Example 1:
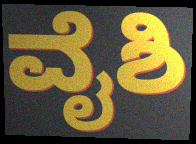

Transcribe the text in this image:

ವೈಶಿ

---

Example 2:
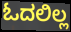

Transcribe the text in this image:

ಓದಲಿಲ್ಲ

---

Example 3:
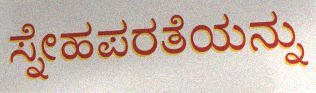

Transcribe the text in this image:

ಸ್ನೇಹಪರತೆಯನ್ನು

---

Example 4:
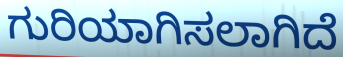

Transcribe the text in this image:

ಗುರಿಯಾಗಿಸಲಾಗಿದೆ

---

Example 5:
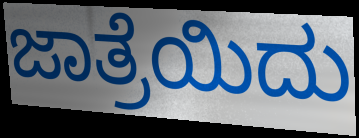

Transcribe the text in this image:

ಜಾತ್ರೆಯಿದು